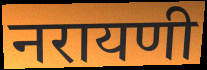
नरायणी